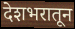
देशभरातून